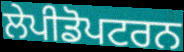
ਲੇਪੀਡੋਪਟਰਨ